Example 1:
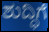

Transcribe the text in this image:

ಶುದ್ಧಿಗೆ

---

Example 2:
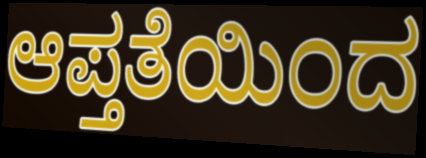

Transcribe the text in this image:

ಆಪ್ತತೆಯಿಂದ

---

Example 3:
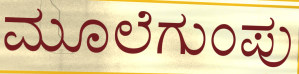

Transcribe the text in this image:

ಮೂಲೆಗುಂಪು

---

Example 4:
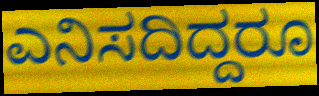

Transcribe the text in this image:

ಎನಿಸದಿದ್ದರೂ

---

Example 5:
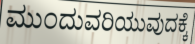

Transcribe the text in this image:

ಮುಂದುವರಿಯುವುದಕ್ಕೆ